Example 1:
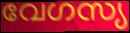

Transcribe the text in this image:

വേഗസ്യ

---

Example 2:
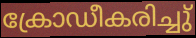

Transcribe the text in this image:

ക്രോഡീകരിച്ചു്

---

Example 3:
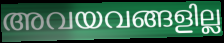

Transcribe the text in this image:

അവയവങ്ങളില്ല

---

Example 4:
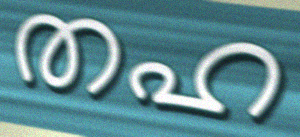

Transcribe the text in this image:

തഹ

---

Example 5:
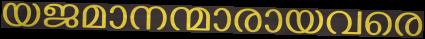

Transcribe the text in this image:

യജമാനന്മാരായവരെ